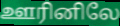
ஊரினிலே